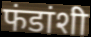
फंडांशी